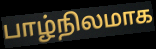
பாழ்நிலமாக